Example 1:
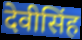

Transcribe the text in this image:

देवीसिंह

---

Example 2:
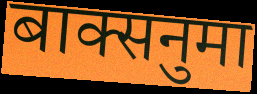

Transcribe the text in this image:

बाक्सनुमा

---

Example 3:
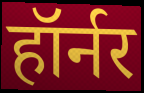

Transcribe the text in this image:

हॉर्नर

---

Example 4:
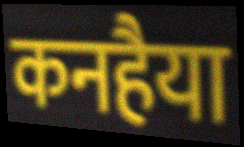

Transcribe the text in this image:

कनहैया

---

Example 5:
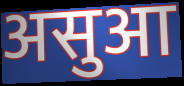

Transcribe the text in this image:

असुआ